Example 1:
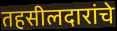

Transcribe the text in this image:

तहसीलदारांचे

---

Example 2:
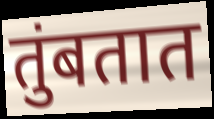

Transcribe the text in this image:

तुंबतात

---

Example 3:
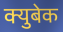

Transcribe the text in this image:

क्युबेक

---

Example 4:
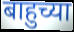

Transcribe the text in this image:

बाहुच्या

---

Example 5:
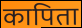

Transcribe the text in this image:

कापिता